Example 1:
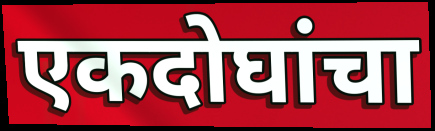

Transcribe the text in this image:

एकदोघांचा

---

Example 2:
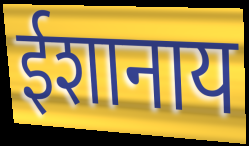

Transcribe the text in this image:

ईशानाय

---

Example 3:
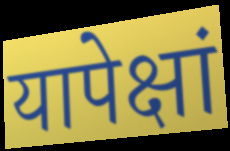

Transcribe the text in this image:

यापेक्षां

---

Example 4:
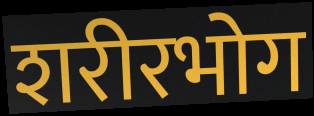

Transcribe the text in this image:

शरीरभोग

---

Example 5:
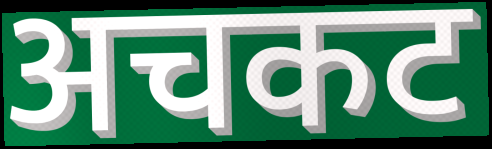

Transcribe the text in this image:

अचकट